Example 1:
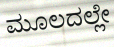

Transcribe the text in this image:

ಮೂಲದಲ್ಲೇ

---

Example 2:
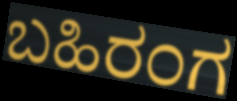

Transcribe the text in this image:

ಬಹಿರಂಗ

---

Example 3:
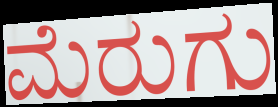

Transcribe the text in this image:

ಮೆರುಗು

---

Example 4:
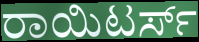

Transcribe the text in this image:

ರಾಯಿಟರ್ಸ್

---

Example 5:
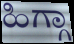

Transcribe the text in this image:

ಹಿಗ್ಗಾ